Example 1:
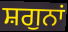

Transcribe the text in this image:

ਸ਼ਗੁਨਾਂ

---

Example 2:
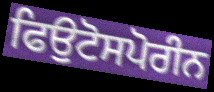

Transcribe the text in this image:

ਫਿਉਟੋਸਪੋਰੀਨ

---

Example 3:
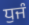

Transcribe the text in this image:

ਧੁਜੰ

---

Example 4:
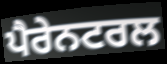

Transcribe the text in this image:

ਪੈਰੇਨਟਰਲ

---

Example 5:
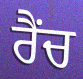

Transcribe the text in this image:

ਰੈਂਚ